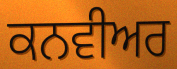
ਕਨਵੀਅਰ